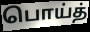
பொய்த்